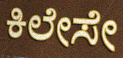
ಕಿಲೇಸೇ